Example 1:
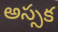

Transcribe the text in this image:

అస్సక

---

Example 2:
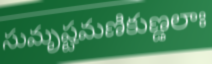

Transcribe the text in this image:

సుమృష్టమణికుణ్డలాః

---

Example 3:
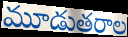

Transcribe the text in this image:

మూడుతరాల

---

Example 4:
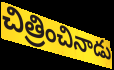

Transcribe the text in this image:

చిత్రించినాడు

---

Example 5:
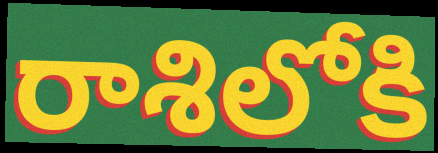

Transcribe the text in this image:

రాశిలోకి